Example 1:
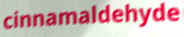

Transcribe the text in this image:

cinnamaldehyde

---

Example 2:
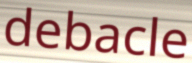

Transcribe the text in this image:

debacle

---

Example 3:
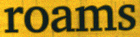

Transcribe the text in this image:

roams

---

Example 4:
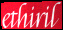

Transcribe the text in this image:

ethiril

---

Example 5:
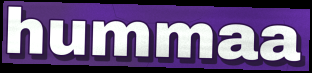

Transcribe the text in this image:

hummaa